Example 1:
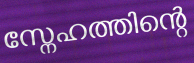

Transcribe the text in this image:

സ്നേഹത്തിന്റെ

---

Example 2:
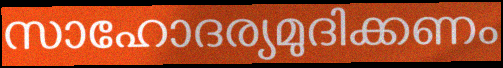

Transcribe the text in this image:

സാഹോദര്യമുദിക്കണം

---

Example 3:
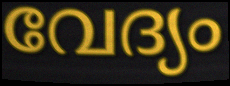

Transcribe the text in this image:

വേദ്യം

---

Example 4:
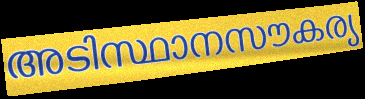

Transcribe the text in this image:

അടിസ്ഥാനസൗകര്യ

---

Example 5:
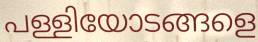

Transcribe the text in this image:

പള്ളിയോടങ്ങളെ